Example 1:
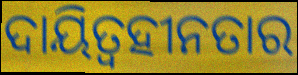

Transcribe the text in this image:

ଦାୟିତ୍ଵହୀନତାର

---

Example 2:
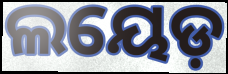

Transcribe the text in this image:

ଲୟେଡ଼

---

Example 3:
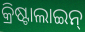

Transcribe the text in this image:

କ୍ରିଷ୍ଟାଲାଇନ୍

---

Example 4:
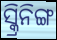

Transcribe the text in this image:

ସ୍କ୍ରିନିଙ୍ଗ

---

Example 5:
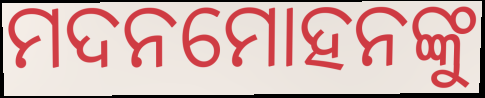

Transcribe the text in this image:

ମଦନମୋହନଙ୍କୁ